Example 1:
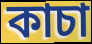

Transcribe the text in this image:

কাচা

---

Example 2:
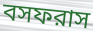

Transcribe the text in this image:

বসফরাস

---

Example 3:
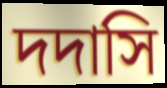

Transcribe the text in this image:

দদাসি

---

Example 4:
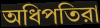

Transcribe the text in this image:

অধিপতিরা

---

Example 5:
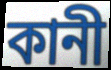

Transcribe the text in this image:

কানী